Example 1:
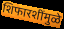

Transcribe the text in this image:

शिफारशींमुळे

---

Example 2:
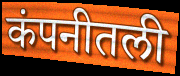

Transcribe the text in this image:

कंपनीतली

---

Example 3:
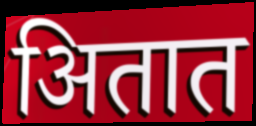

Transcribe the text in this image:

अितात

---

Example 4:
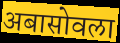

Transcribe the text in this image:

अबासोवला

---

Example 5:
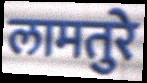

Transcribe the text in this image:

लामतुरे